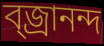
ব্জ্রানন্দ